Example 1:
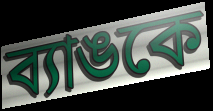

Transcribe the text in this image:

ব্যাঙকে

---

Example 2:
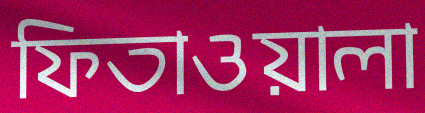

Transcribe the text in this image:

ফিতাওয়ালা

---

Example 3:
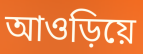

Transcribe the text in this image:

আওড়িয়ে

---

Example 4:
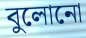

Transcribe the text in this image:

বুলোনো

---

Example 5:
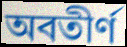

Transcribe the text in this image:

অবতীর্ণ